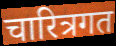
चारित्रगत